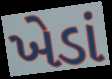
ખેડાં